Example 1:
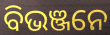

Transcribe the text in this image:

ବିଭଞ୍ଜନେ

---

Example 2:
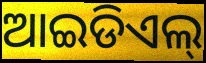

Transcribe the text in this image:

ଆଇଡିଏଲ୍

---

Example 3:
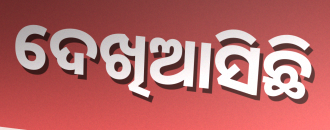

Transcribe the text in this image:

ଦେଖିଆସିଛି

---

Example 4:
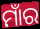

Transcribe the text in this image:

ମାଁର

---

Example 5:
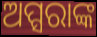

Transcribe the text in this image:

ଅପ୍ସରାଙ୍କ